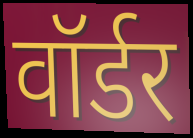
वॉर्डर